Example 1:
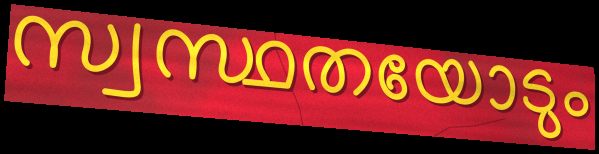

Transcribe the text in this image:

സ്വസ്ഥതയോടും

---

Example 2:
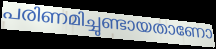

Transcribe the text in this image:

പരിണമിച്ചുണ്ടായതാണോ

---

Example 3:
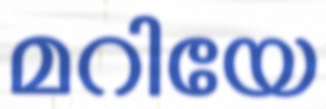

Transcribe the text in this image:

മറിയേ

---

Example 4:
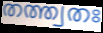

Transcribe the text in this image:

തത്ത്വതഃ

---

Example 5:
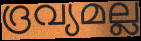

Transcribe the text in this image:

ദ്രവ്യമല്ല